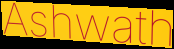
Ashwath